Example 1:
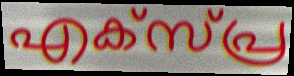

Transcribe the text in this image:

എക്സ്പ്ര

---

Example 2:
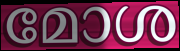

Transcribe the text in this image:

മോശ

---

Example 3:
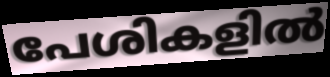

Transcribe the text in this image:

പേശികളിൽ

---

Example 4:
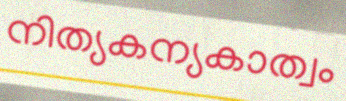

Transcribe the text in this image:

നിത്യകന്യകാത്വം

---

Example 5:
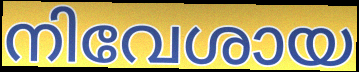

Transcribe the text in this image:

നിവേശായ